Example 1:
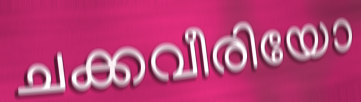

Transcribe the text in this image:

ചക്കവീരിയോ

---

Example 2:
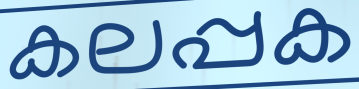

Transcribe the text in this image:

കലപ്പക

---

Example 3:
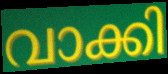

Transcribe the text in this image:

വാക്കി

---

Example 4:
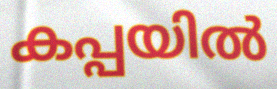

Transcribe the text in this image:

കപ്പയിൽ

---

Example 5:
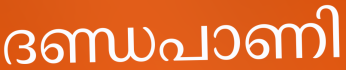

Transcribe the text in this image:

ദണ്ഡപാണി